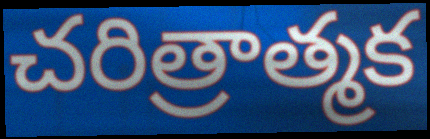
చరిత్రాత్మక